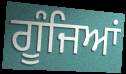
ਗੂੰਜਿਆਂ